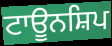
ਟਾਊਨਸ਼ਿਪ